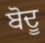
ਬੋਦੂ